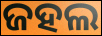
ଜହଲ